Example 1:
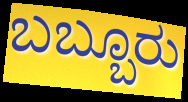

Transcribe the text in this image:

ಬಬ್ಬೂರು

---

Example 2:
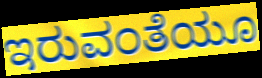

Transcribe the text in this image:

ಇರುವಂತೆಯೂ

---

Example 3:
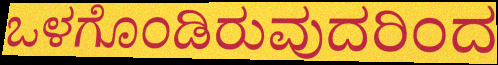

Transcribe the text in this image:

ಒಳಗೊಂಡಿರುವುದರಿಂದ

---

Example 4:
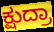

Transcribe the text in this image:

ಕ್ಷುದ್ರಾ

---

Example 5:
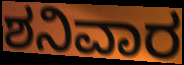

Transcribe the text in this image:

ಶನಿವಾರ